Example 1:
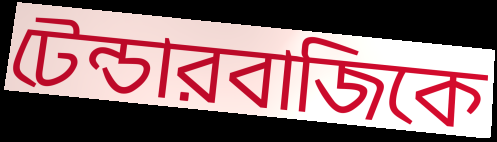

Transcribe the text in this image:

টেন্ডারবাজিকে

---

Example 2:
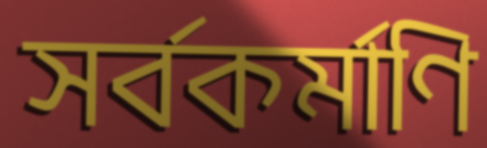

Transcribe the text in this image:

সর্বকর্মাণি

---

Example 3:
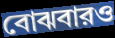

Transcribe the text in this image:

বোঝবারও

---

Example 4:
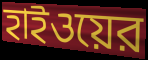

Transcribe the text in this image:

হাইওয়ের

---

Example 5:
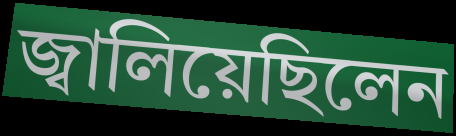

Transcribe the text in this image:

জ্বালিয়েছিলেন